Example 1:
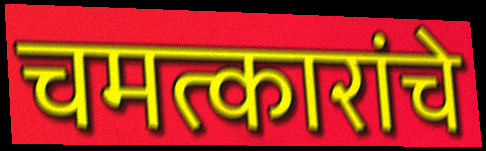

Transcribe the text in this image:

चमत्कारांचे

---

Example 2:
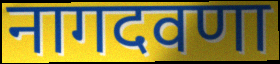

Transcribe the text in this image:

नागदवणा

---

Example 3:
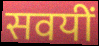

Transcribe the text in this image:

सवयीं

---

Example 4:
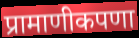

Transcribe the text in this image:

प्रामाणीकपणा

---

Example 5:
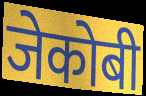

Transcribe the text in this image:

जेकोबी